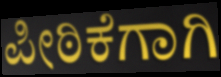
ಪೀಠಿಕೆಗಾಗಿ